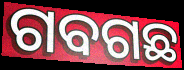
ଗବଗଛ